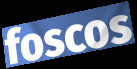
foscos